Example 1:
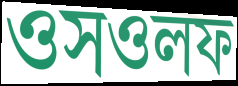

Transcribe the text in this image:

ওসওলফ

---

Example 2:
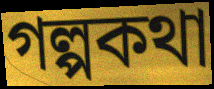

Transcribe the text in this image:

গল্পকথা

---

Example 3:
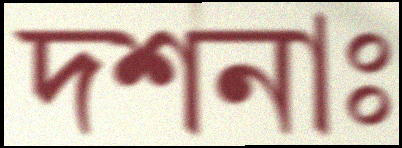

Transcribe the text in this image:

দশনাঃ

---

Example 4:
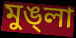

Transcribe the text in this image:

মুঙ্লা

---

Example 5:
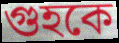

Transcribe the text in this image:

গুহকে